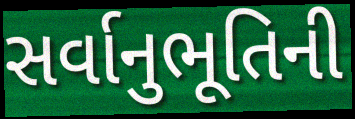
સર્વાનુભૂતિની